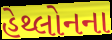
હેથ્લોનના